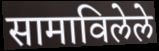
सामाविलेले